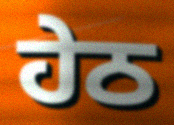
ਹੇਠ